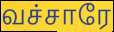
வச்சாரே